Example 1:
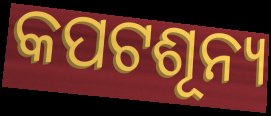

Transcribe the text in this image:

କପଟଶୂନ୍ୟ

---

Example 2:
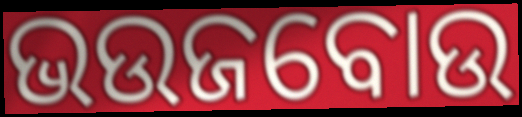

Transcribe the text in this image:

ଭଉଜବୋଉ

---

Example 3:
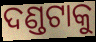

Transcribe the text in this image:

ଦଣ୍ଡଟାକୁ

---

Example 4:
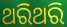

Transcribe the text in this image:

ଥରିଥରି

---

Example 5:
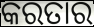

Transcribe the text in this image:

କରତାର